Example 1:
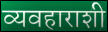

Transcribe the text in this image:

व्यवहाराशी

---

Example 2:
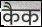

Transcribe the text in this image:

कैक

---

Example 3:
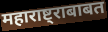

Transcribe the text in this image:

महाराष्ट्राबाबत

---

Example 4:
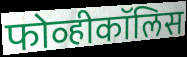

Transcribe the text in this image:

फोव्हीकॉलिस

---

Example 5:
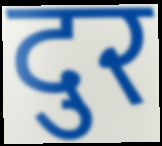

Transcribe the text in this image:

दुर